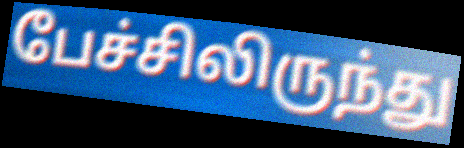
பேச்சிலிருந்து